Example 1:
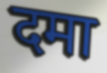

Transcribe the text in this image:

दमा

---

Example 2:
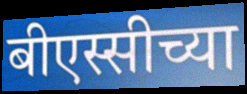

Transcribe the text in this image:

बीएस्सीच्या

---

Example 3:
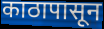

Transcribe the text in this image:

काठापासून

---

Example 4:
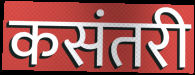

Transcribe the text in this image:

कसंतरी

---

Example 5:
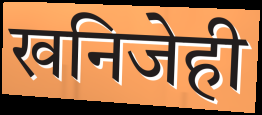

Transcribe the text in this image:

खनिजेही